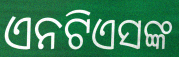
ଏନଟିଏସଙ୍କ